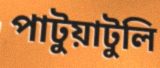
পাটুয়াটুলি